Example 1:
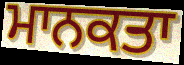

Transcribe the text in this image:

ਮਾਨਕਤਾ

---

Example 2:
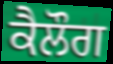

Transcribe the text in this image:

ਕੈਲੌਗ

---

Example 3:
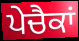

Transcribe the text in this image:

ਪੇਚੈਕਾਂ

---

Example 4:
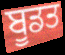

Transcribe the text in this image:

ਬੂਡਤ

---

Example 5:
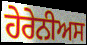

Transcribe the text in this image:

ਹੇਰੇਨੀਅਸ